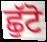
ਛੁੱਟੋ